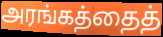
அரங்கத்தைத்